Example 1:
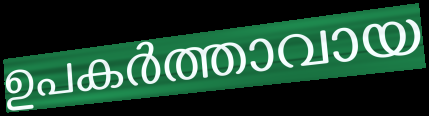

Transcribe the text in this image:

ഉപകർത്താവായ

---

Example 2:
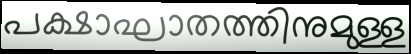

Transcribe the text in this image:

പക്ഷാഘാതത്തിനുമുള്ള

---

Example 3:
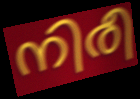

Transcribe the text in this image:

നിരീ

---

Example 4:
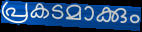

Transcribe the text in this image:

പ്രകടമാക്കും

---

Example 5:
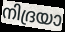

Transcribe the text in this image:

നിദ്രയാ